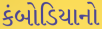
કંબોડિયાનો